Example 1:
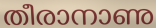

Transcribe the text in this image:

തീരാനാണു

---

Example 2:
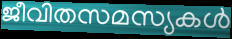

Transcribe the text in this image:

ജീവിതസമസ്യകൾ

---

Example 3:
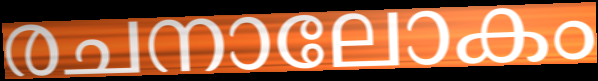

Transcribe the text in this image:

രചനാലോകം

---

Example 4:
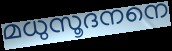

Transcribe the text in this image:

മധുസൂദനനെ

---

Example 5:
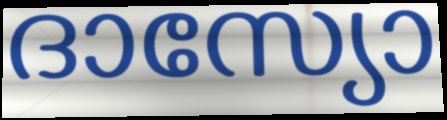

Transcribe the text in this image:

ദാസ്യോ